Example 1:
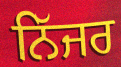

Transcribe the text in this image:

ਨਿੱਜਰ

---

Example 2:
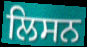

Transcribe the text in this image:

ਲਿਸਨ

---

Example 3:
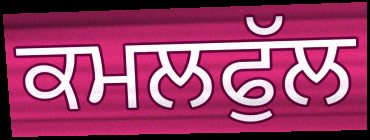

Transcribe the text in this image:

ਕਮਲਫੁੱਲ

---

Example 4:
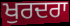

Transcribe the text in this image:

ਖੁਰਦਰਾ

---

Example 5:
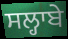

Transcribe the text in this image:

ਸਲ੍ਹਾਬੇ